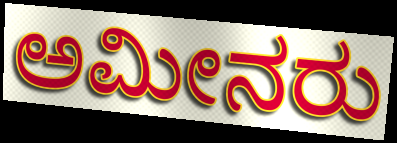
ಅಮೀನರು